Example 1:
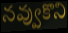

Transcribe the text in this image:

నవ్వుకొని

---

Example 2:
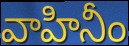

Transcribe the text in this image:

వాహినీం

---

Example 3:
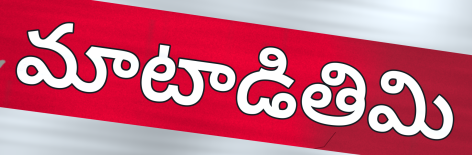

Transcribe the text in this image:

మాటాడితిమి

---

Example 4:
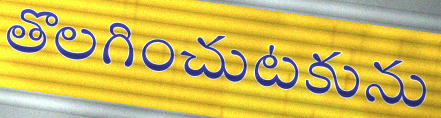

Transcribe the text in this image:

తొలగించుటకును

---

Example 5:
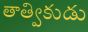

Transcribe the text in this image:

తాత్వికుడు